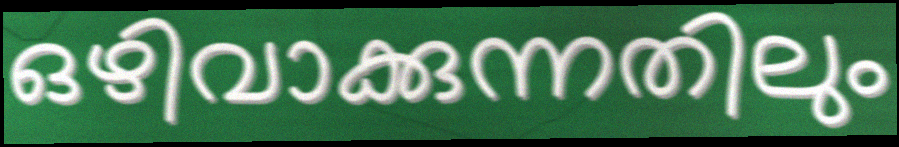
ഒഴിവാക്കുന്നതിലും